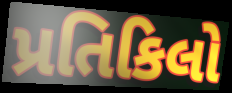
પ્રતિકિલો